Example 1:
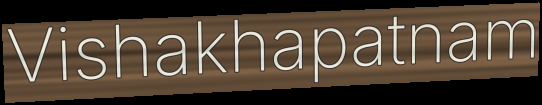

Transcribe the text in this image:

Vishakhapatnam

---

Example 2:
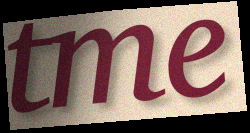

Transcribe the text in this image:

tme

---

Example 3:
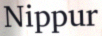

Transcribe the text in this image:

Nippur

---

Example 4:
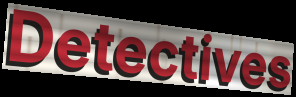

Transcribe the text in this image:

Detectives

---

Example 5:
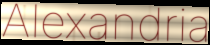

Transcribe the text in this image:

Alexandria